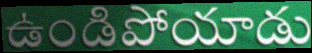
ఉండిపోయాడు